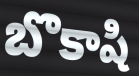
బొకాషి